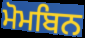
ਮੋਮਬਿਨ